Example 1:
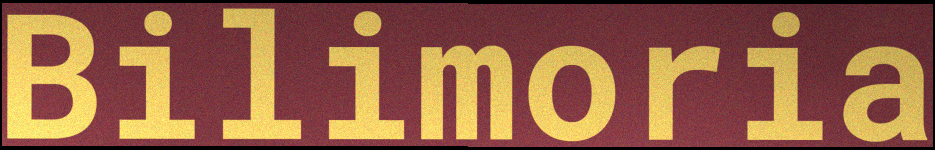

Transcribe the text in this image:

Bilimoria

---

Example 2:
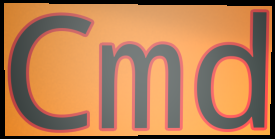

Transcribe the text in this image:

Cmd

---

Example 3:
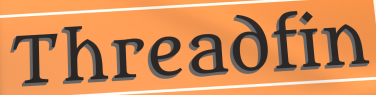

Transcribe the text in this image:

Threadfin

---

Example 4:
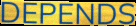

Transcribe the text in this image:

DEPENDS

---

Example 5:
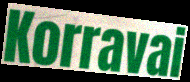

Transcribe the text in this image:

Korravai